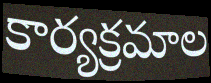
కార్యక్రమాల